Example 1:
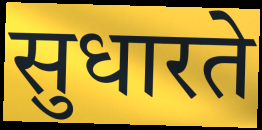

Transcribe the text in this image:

सुधारते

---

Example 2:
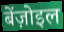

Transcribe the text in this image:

बेंज़ोइल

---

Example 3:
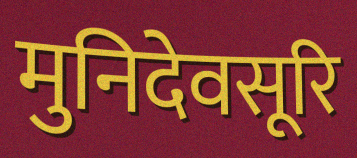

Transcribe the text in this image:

मुनिदेवसूरि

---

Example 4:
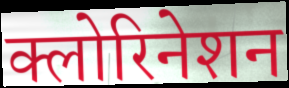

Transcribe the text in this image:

क्लोरिनेशन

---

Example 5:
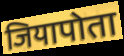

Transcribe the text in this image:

जियापोता